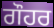
ਗੌਹਰ